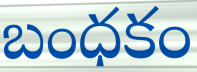
బంధకం